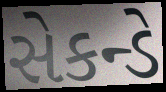
સેકન્ડે